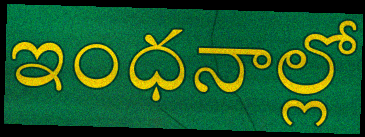
ఇంధనాల్లో